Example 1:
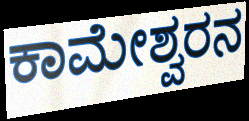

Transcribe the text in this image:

ಕಾಮೇಶ್ವರನ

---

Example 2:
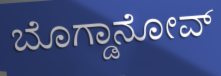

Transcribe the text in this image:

ಬೊಗ್ಡಾನೋವ್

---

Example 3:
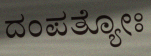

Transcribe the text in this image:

ದಂಪತ್ಯೋಃ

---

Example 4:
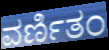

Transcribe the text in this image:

ವರ್ಣಿತಂ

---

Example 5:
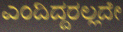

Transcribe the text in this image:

ಎಂದಿದ್ದರಲ್ಲದೇ